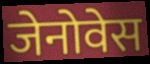
जेनोवेस